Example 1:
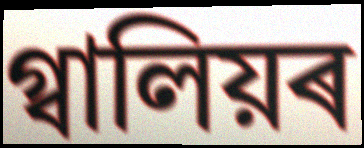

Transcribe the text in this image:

গ্বালিয়ৰ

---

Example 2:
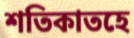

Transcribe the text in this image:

শতিকাতহে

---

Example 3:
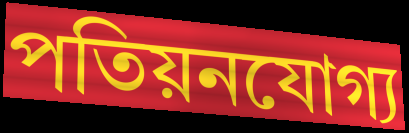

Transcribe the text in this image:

পতিয়নযোগ্য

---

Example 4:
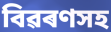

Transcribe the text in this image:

বিৱৰণসহ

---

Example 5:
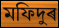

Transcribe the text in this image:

মফিদুৰ